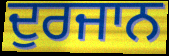
ਦੁਰਜਾਨ